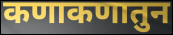
कणाकणातुन